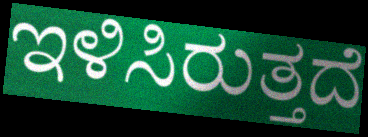
ಇಳಿಸಿರುತ್ತದೆ